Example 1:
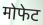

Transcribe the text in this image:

मोफेट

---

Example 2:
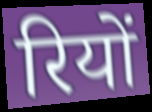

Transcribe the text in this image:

रियों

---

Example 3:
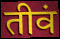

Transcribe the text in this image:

तीवं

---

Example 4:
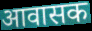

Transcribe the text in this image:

आवासक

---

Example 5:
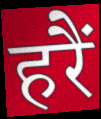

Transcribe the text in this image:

हरैं